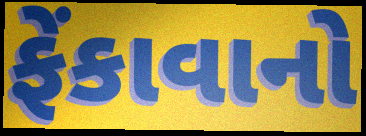
ફેંકાવાનો